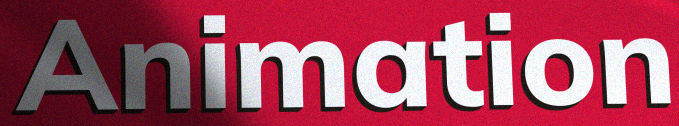
Animation